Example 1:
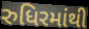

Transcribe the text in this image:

રુધિરમાંથી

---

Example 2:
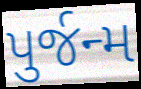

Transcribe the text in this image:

પુર્જન્મ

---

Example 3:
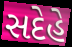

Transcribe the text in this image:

સદેહે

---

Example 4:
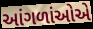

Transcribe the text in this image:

આંગળાંઓએ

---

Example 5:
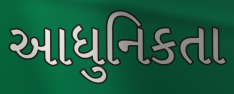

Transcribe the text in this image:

આધુનિકતા